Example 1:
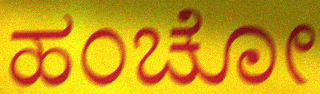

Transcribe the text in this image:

ಹಂಚೋ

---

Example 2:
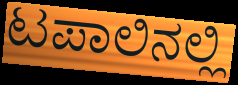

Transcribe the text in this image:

ಟಪಾಲಿನಲ್ಲಿ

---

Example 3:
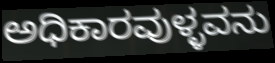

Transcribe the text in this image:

ಅಧಿಕಾರವುಳ್ಳವನು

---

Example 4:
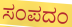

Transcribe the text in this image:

ಸಂಪದಂ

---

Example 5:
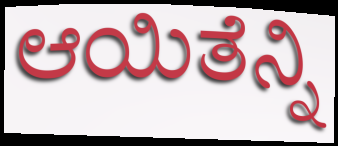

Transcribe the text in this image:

ಆಯಿತೆನ್ನಿ